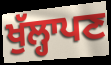
ਖੁੱਲ੍ਹਾਪਣ